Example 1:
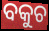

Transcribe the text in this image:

ବକୁଚ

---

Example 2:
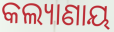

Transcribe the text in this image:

କଲ୍ୟାଣାୟ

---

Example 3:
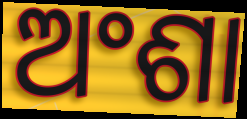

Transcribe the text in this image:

ଅଂଶା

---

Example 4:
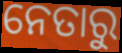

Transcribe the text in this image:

ନେତାରୁ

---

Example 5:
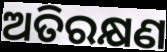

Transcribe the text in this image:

ଅତିରକ୍ଷଣ